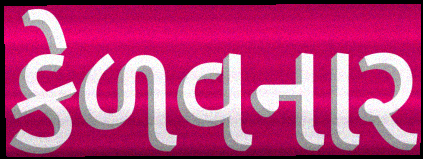
કેળવનાર